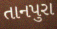
તાનપુરા